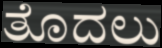
ತೊದಲು